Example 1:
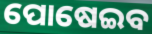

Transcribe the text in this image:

ପୋଷେଇବ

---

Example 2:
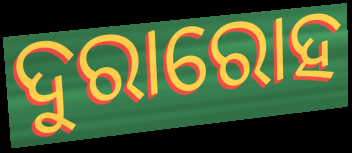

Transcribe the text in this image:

ଦୁରାରୋହ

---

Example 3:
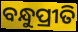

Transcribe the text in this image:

ବନ୍ଧୁପ୍ରୀତି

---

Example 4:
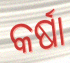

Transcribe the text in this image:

କର୍ଷା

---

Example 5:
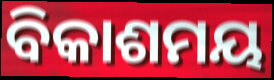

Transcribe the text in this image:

ବିକାଶମୟ